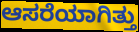
ಆಸರೆಯಾಗಿತ್ತು